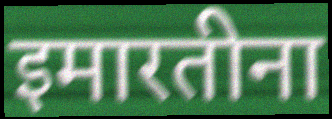
इमारतीना